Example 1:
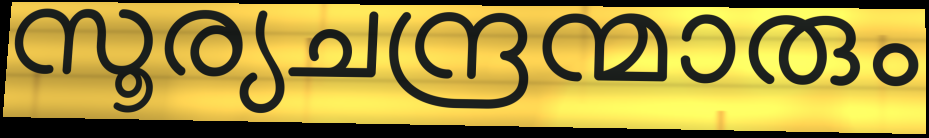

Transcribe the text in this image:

സൂര്യചന്ദ്രന്മാരും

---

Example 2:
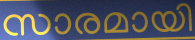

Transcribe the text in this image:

സാരമായി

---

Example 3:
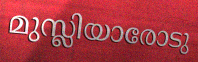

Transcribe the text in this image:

മുസ്ലിയാരോടു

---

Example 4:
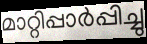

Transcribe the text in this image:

മാറ്റിപ്പാർപ്പിച്ചു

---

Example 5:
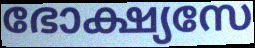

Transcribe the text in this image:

ഭോക്ഷ്യസേ